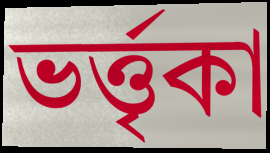
ভর্ত্তৃকা